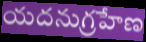
యదనుగ్రహేణ